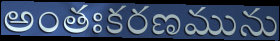
అంతఃకరణమును